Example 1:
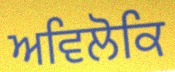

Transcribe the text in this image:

ਅਵਿਲੋਕਿ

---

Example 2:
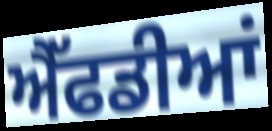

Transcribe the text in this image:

ਐੱਫਡੀਆਂ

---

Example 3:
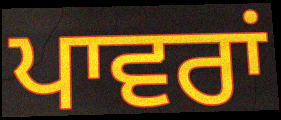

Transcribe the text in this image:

ਪਾਵਰਾਂ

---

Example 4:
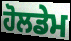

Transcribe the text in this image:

ਹੋਲਡੇਮ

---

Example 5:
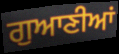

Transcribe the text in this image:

ਗੁਆਣੀਆਂ